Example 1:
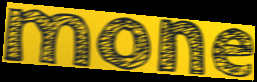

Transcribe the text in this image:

mone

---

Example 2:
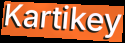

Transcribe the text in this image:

Kartikey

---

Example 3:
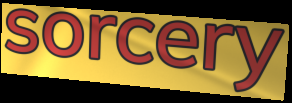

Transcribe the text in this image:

sorcery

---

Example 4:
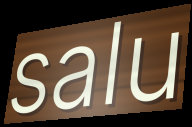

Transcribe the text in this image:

salu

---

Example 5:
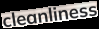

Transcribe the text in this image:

cleanliness